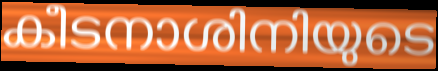
കീടനാശിനിയുടെ